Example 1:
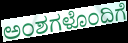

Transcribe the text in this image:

ಅಂಶಗಳೊಂದಿಗೆ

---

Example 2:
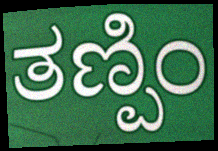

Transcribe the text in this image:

ತಣ್ಪಿಂ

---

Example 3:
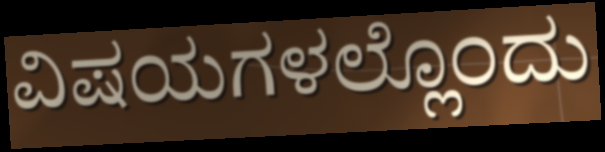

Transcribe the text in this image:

ವಿಷಯಗಳಲ್ಲೊಂದು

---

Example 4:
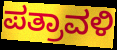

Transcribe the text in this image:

ಪತ್ರಾವಳಿ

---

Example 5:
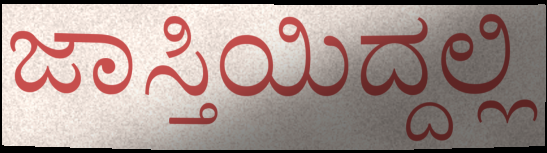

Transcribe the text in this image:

ಜಾಸ್ತಿಯಿದ್ದಲ್ಲಿ